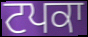
ਟਪਕਾ